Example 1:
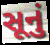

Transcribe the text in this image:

સૂનું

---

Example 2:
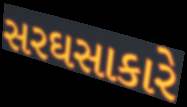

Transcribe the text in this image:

સરઘસાકારે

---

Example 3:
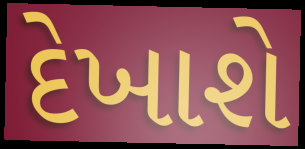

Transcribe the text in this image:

દેખાશે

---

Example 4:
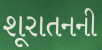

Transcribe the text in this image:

શૂરાતનની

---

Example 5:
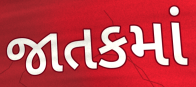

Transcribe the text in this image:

જાતકમાં